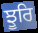
ਝੂਰਿ